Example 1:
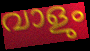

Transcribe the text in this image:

വാളും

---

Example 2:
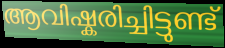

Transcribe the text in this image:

ആവിഷ്കരിച്ചിട്ടുണ്ട്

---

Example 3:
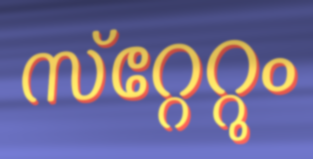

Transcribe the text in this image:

സ്‌റ്റേറ്റും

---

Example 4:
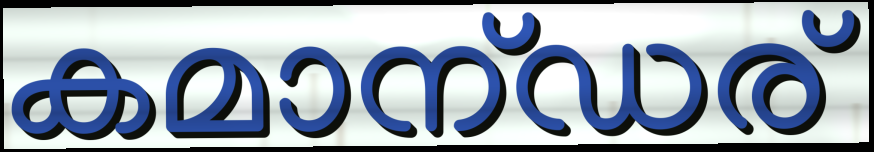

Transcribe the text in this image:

കമാന്ഡര്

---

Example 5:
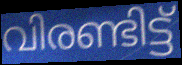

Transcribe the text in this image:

വിരണ്ടിട്ട്